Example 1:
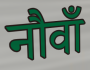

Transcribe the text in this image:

नौवाँ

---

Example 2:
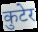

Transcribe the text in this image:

कुटेर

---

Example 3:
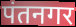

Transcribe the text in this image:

पंतनगर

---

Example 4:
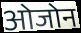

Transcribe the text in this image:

ओजोन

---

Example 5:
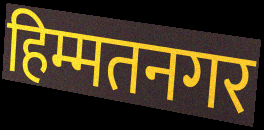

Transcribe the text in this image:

हिम्‍मतनगर